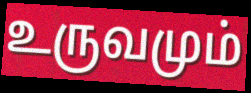
உருவமும்